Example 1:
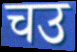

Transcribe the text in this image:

चउ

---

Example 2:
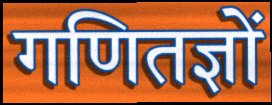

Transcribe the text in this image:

गणितज्ञों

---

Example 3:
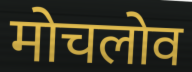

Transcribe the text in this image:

मोचलोव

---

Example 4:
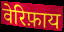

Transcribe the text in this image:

वेरिफ़ाय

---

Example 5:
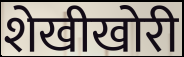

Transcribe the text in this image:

शेखीखोरी